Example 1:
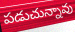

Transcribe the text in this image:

పడుచున్నావు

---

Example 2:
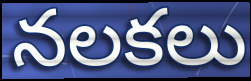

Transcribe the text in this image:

నలకలు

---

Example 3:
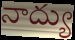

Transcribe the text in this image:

నాద్యు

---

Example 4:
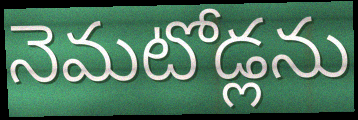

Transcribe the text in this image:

నెమటోడ్లను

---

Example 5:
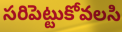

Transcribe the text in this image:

సరిపెట్టుకోవలసి